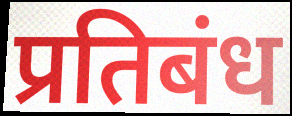
प्रतिबंध